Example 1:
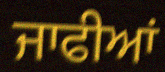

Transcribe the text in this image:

ਜਾਫੀਆਂ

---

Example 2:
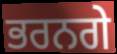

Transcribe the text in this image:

ਭਰਨਗੇ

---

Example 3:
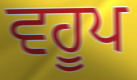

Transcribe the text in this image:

ਵਹੂਪ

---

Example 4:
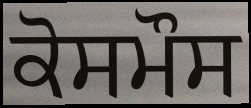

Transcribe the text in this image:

ਕੋਸਮੌਸ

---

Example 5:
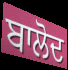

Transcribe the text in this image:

ਬਾਲੋਦ